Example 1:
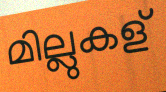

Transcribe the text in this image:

മില്ലുകള്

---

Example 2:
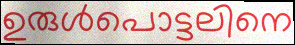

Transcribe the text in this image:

ഉരുൾപൊട്ടലിനെ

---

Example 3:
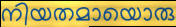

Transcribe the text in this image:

നിയതമായൊരു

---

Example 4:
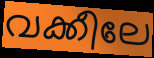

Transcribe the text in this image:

വക്കീലേ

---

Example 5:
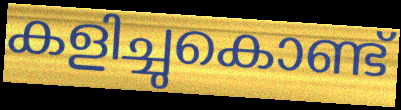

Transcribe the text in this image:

കളിച്ചുകൊണ്ട്